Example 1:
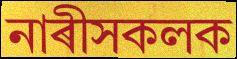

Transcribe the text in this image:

নাৰীসকলক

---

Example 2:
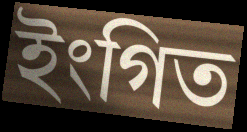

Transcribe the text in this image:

ইংগিত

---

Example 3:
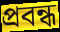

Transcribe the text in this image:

প্ৰবন্ধ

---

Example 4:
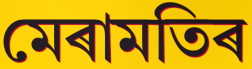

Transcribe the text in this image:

মেৰামতিৰ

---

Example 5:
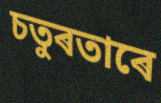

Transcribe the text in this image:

চতুৰতাৰে